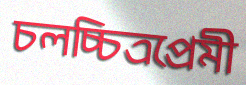
চলচ্চিত্রপ্রেমী